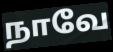
நாவே